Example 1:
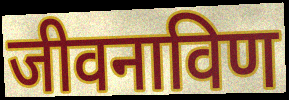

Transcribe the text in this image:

जीवनाविण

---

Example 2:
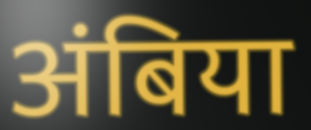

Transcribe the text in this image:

अंबिया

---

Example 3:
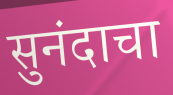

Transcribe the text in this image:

सुनंदाचा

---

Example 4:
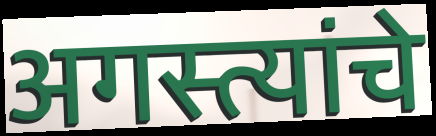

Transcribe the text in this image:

अगस्त्यांचे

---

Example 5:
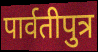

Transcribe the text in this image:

पार्वतीपुत्र